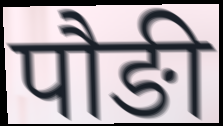
पौङी